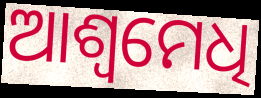
ଆଶ୍ୱମେଧି